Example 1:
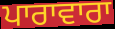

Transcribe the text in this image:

ਪਾਰਾਵਾਰਾ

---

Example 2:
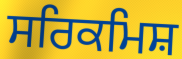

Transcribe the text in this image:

ਸਰਿਕਮਿਸ਼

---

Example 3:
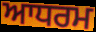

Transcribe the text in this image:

ਆਧਰਮ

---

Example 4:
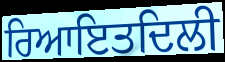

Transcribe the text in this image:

ਰਿਆਇਤਦਿਲੀ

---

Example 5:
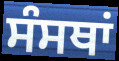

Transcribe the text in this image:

ਸੰਸਥਾਂ